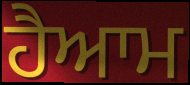
ਹੈਆਮ